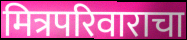
मित्रपरिवाराचा